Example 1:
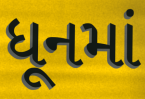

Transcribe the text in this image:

ધૂનમાં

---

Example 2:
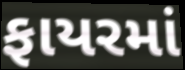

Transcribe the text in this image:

ફાયરમાં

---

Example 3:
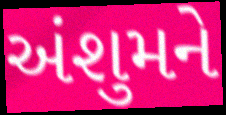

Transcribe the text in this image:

અંશુમને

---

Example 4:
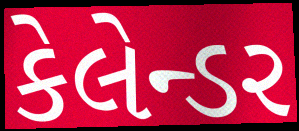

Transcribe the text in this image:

કેલેન્ડર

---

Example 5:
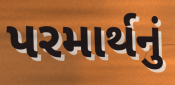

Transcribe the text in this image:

પરમાર્થનું